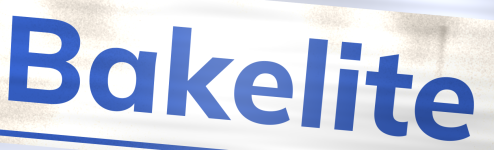
Bakelite